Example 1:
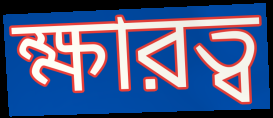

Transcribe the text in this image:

ক্ষারত্ব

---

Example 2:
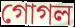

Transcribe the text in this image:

গোগল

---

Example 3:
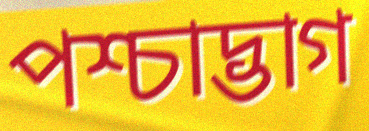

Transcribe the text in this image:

পশ্চাদ্ভাগ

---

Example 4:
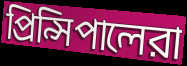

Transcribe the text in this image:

প্রিন্সিপালেরা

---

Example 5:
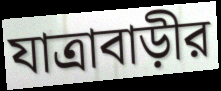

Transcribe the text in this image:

যাত্রাবাড়ীর